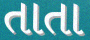
તાતા